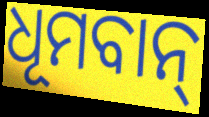
ଧୂମବାନ୍